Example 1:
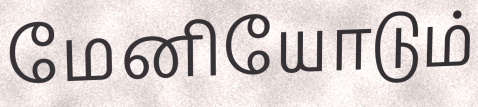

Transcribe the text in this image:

மேனியோடும்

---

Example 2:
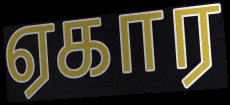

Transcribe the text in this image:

ஏகார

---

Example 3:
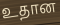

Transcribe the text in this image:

உதான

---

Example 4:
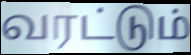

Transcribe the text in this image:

வரட்டும்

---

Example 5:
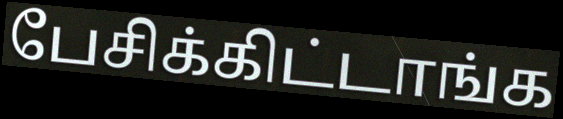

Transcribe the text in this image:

பேசிக்கிட்டாங்க